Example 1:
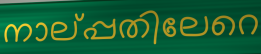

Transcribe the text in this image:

നാല്പ്പതിലേറെ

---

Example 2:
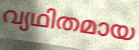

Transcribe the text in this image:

വ്യഥിതമായ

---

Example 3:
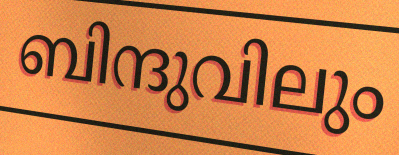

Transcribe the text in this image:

ബിന്ദുവിലും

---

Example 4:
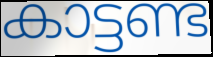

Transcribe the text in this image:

കാട്ടണ്ട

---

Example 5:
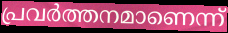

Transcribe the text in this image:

പ്രവർത്തനമാണെന്ന്